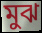
মুঝ